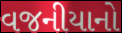
વજનીયાનો